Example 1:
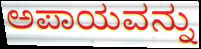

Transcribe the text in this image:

ಅಪಾಯವನ್ನು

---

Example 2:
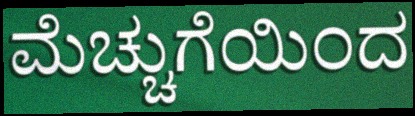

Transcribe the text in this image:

ಮೆಚ್ಚುಗೆಯಿಂದ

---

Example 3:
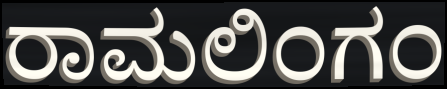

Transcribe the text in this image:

ರಾಮಲಿಂಗಂ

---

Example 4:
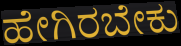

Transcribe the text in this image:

ಹೇಗಿರಬೇಕು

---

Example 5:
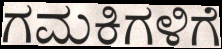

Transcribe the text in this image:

ಗಮಕಿಗಳಿಗೆ